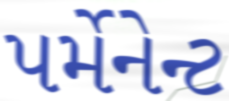
પર્મેનેન્ટ